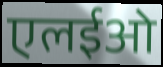
एलईओ